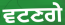
ਵਟਣਗੇ